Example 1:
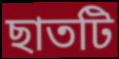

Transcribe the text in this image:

ছাতটি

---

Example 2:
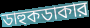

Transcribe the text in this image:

ডাহুকডাকার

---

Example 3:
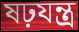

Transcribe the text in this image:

ষঢ়যন্ত্র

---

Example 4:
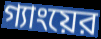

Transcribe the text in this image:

গ্যাংয়ের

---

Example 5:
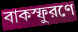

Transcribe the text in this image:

বাকস্ফুরণে